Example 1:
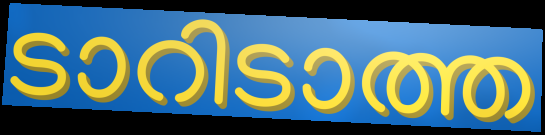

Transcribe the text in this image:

ടാറിടാത്ത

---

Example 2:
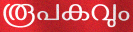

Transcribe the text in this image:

രൂപകവും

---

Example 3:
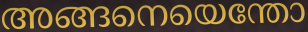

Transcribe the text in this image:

അങ്ങനെയെന്തോ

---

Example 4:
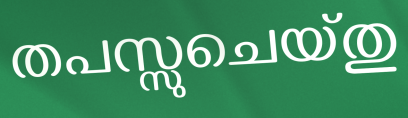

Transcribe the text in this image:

തപസ്സുചെയ്തു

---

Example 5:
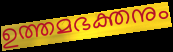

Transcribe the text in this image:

ഉത്തമഭക്തനും